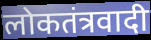
लोकतंत्रवादी